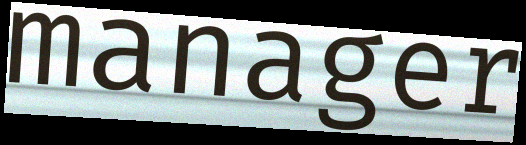
manager